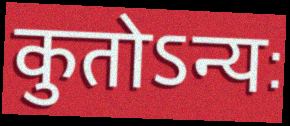
कुतोऽन्यः